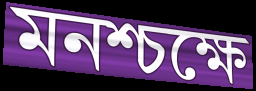
মনশ্চক্ষে